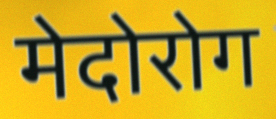
मेदोरोग